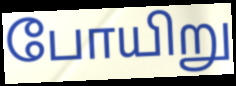
போயிறு